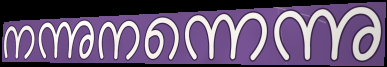
നന്നുനന്നെന്നു